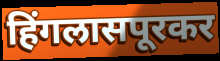
हिंगलासपूरकर